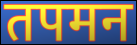
तपमन